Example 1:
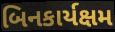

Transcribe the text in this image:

બિનકાર્યક્ષમ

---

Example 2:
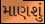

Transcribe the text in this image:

માણશું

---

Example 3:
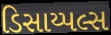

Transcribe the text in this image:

ડિસાય્પલ્સ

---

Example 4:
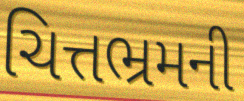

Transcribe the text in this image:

ચિત્તભ્રમની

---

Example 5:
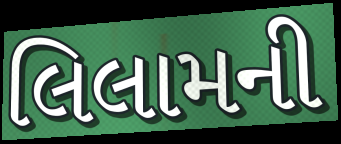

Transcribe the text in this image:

લિલામની